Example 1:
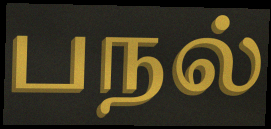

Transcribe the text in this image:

பநல்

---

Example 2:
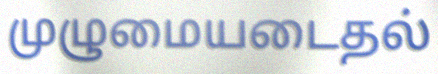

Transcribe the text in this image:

முழுமையடைதல்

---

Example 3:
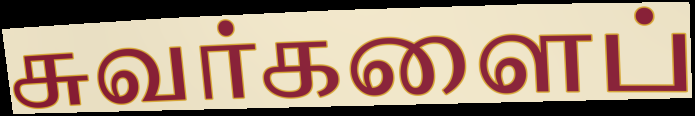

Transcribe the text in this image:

சுவர்களைப்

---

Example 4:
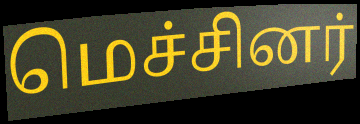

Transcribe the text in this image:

மெச்சினர்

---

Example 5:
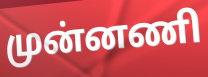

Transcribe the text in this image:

முன்னணி